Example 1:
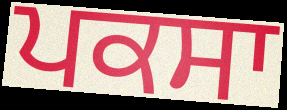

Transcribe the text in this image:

ਪਕਸਾ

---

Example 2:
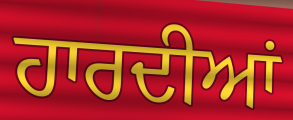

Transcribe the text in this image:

ਹਾਰਦੀਆਂ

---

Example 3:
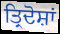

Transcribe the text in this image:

ਤ੍ਰਿਦੋਸ਼ਾਂ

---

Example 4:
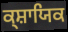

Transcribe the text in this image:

ਕ੍ਸ਼ਾਯਿਕ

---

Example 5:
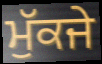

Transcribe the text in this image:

ਮੁੱਕਜੇ